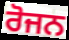
ਰੋਜਨ